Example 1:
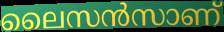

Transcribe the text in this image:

ലൈസൻസാണ്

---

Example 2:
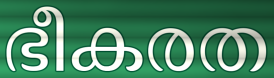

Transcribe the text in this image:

ഭീകരത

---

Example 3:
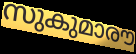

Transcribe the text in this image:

സുകുമാരൗ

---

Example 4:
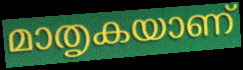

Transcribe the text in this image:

മാതൃകയാണ്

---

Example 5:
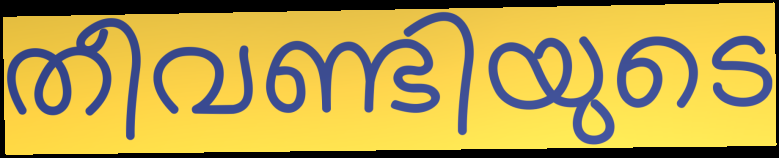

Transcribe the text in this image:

തീവണ്ടിയുടെ